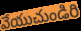
వేయుచుండిరి